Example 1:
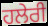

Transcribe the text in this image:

ਹਲੇਰੀ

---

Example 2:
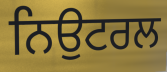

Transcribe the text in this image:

ਨਿਉਟਰਲ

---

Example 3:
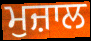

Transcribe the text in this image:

ਮੁਜ਼ਾਲ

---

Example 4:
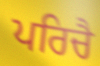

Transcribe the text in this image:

ਪਰਿਚੈ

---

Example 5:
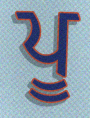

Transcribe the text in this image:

ਪੂ